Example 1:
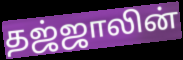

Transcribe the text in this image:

தஜ்ஜாலின்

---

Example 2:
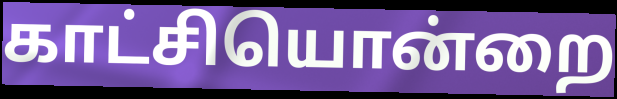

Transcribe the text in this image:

காட்சியொன்றை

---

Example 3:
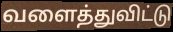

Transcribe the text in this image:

வளைத்துவிட்டு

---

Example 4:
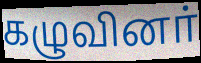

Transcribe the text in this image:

கழுவினர்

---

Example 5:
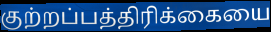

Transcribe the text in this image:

குற்றப்பத்திரிக்கையை